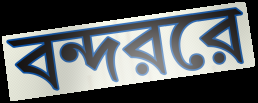
বন্দররে